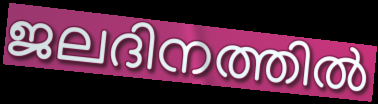
ജലദിനത്തിൽ